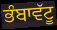
ਭੰਬਾਵੱਟੂ